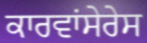
ਕਾਰਵਾਂਸੇਰੇਸ